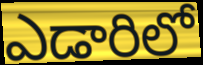
ఎడారిలో